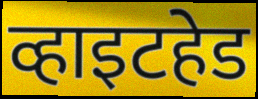
व्हाइटहेड